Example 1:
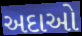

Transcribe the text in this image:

અદાઓ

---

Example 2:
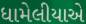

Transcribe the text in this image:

ધામેલીયાએ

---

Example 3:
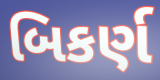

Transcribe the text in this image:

બિકર્ણ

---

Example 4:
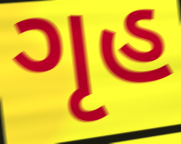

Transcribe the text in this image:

ગૃહ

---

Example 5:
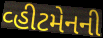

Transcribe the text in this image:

વ્હીટમેનની